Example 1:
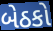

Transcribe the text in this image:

બેઠકો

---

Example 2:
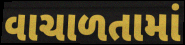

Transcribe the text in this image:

વાચાળતામાં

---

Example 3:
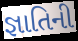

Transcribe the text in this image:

જ્ઞાતિની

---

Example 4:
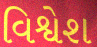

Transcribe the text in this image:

વિશ્વેશ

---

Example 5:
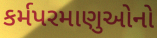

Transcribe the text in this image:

કર્મપરમાણુઓનો